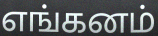
எங்கனம்